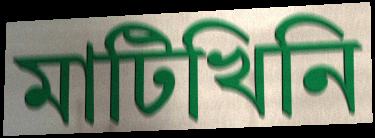
মাটিখিনি